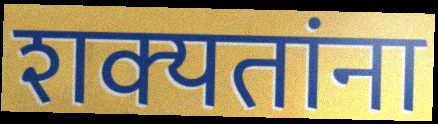
शक्यतांना